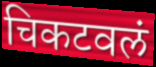
चिकटवलं